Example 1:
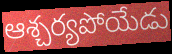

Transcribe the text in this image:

ఆశ్చర్యపోయేడు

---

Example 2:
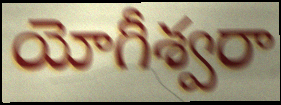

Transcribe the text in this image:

యోగీశ్వరా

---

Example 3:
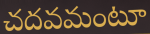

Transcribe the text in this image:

చదవమంటూ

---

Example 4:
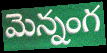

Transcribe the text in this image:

మెన్నంగ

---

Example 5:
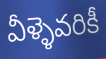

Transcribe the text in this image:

వీళ్ళెవరికీ